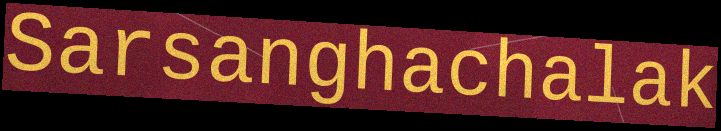
Sarsanghachalak